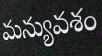
మన్యువశం